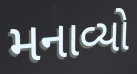
મનાવ્યો